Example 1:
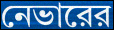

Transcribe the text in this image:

নেভারের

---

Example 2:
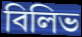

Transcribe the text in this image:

বিলিভ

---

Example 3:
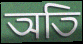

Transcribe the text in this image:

অতি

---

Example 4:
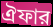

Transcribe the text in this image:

ঐফার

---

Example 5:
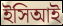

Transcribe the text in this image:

ইসিআই